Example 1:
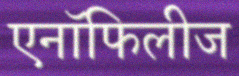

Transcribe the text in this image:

एनॉफिलीज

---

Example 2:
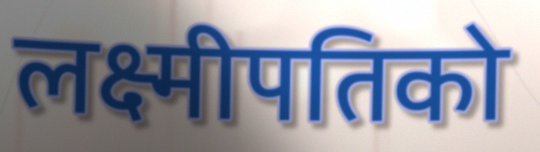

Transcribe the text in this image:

लक्ष्मीपतिको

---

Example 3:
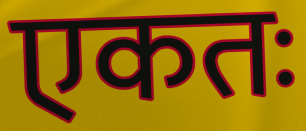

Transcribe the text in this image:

एकतः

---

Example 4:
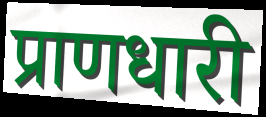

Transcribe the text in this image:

प्राणधारी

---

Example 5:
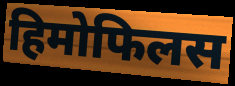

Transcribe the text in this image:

हिमोफिलस